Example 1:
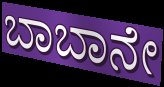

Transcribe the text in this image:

ಬಾಬಾನೇ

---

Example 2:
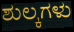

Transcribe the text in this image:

ಶುಲ್ಕಗಳು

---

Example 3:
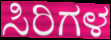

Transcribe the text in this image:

ಸಿರಿಗಳ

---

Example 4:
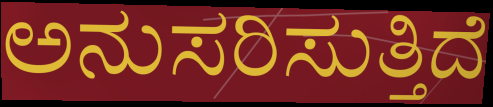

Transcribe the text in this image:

ಅನುಸರಿಸುತ್ತಿದೆ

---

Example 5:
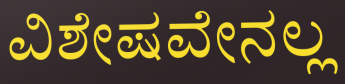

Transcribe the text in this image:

ವಿಶೇಷವೇನಲ್ಲ